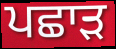
ਪਛਾੜ